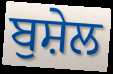
ਬੁਸ਼ੇਲ